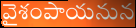
వైశంపాయనున